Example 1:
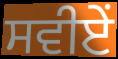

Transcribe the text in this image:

ਸਵੀਏਂ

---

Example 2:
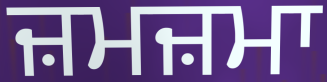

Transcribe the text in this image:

ਜ਼ਮਜ਼ਮਾ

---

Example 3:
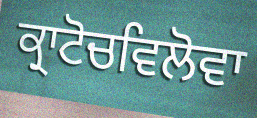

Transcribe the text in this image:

ਕ੍ਰਾਟੋਚਵਿਲੋਵਾ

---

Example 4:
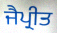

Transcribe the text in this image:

ਜੈਪ੍ਰੀਤ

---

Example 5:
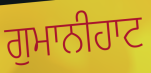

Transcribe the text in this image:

ਗੁਮਾਨੀਹਾਟ